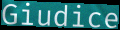
Giudice